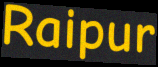
Raipur